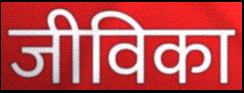
जीविका